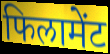
फिलामेंट